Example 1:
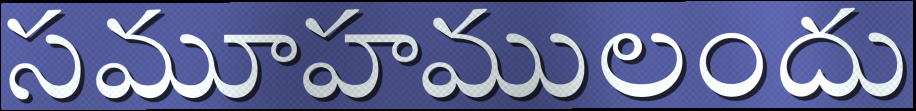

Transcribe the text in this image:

సమూహములందు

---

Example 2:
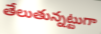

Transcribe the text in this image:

తేలుతున్నట్టుగా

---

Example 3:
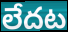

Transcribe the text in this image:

లేదట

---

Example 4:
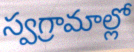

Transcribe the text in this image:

స్వగ్రామాల్లో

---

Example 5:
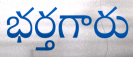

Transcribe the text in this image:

భర్తగారు